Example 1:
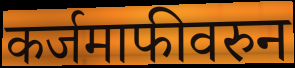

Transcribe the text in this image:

कर्जमाफीवरुन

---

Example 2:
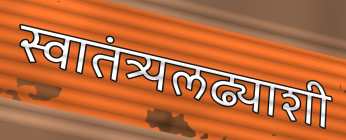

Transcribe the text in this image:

स्वातंत्र्यलढ्याशी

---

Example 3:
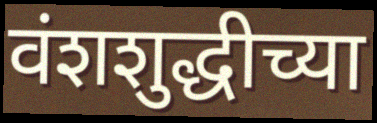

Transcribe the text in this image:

वंशशुद्धीच्या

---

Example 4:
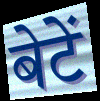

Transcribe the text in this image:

बेटें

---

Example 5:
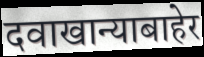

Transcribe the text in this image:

दवाखान्याबाहेर